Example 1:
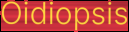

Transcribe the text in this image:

Oidiopsis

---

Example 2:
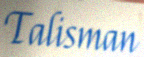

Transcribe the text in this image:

Talisman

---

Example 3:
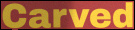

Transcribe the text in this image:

Carved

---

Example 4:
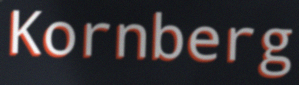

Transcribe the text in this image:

Kornberg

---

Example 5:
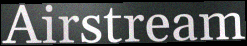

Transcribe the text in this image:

Airstream